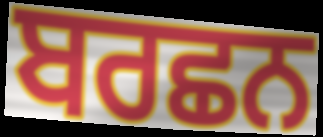
ਬਰਛਨ